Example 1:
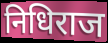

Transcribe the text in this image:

निधिराज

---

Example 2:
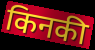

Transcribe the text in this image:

किनकी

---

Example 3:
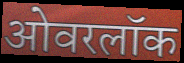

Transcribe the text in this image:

ओवरलॉक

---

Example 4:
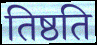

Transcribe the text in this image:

तिष्ठति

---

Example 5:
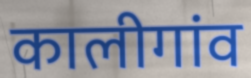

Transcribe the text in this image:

कालीगांव